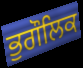
ਭੁਗੌਲਿਕ